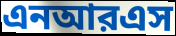
এনআরএস